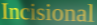
Incisional